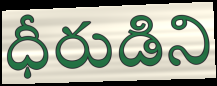
ధీరుడిని